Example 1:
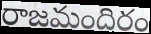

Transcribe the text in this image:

రాజమందిరం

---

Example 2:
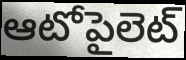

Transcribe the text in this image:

ఆటోపైలెట్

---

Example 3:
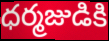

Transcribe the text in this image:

ధర్మజుడికి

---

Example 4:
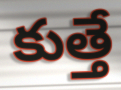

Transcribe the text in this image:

కుత్తే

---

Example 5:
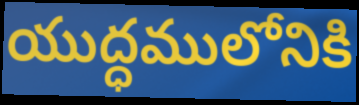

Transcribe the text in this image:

యుద్ధములోనికి